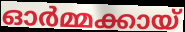
ഓർമ്മക്കായ്